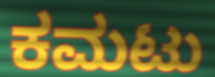
ಕಮಟು